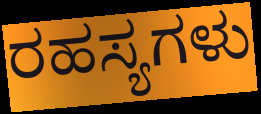
ರಹಸ್ಯಗಳು